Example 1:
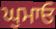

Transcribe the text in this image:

ਘੁਮਾਓ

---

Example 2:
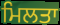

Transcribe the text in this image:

ਮਿਲਤਾ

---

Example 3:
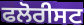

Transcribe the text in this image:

ਫਲੋਰੀਸਟ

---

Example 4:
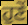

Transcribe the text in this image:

ਹੁਣੇਂ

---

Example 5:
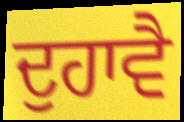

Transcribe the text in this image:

ਦੁਹਾਵੈ